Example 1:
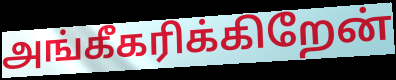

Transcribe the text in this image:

அங்கீகரிக்கிறேன்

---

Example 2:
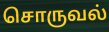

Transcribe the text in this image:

சொருவல்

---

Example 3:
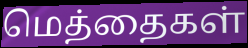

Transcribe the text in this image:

மெத்தைகள்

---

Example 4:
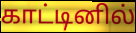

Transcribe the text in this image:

காட்டினில்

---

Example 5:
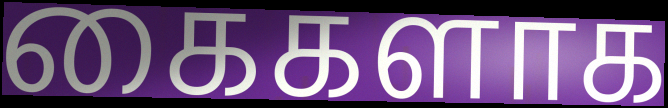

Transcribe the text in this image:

கைகளாக